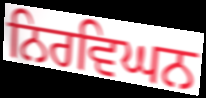
ਨਿਰਵਿਘਨ